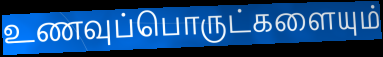
உணவுப்பொருட்களையும்